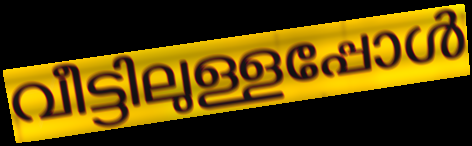
വീട്ടിലുള്ളപ്പോൾ